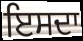
ਇਸਦਾ